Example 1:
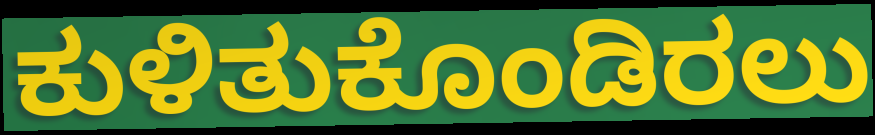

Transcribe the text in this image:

ಕುಳಿತುಕೊಂಡಿರಲು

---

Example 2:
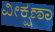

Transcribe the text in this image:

ವೀಕ್ಷಣಾ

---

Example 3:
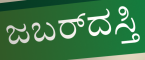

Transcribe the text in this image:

ಜಬರ್‌ದಸ್ತಿ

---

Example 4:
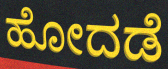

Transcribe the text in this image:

ಹೋದಡೆ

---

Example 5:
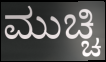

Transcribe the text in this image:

ಮುಚ್ಚಿ